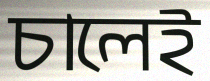
চালেই